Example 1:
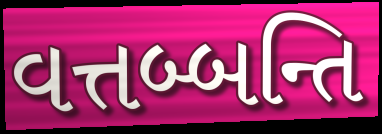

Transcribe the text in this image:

વત્તબ્બન્તિ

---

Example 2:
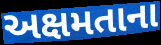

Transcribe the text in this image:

અક્ષમતાના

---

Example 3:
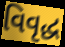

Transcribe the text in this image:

વિવૃદ્ધ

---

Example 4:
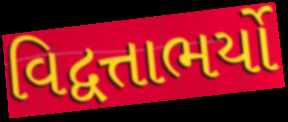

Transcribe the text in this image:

વિદ્વત્તાભર્યો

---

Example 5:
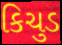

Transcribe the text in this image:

કિચુડ